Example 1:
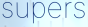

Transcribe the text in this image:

supers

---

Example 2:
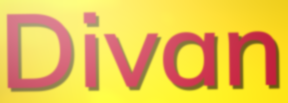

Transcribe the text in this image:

Divan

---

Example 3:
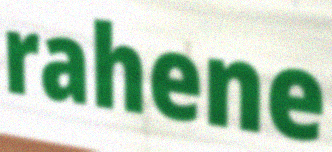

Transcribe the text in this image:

rahene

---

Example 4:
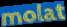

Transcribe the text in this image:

molat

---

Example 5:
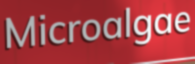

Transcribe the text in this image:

Microalgae